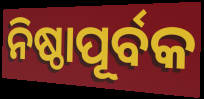
ନିଷ୍ଠାପୂର୍ବକ